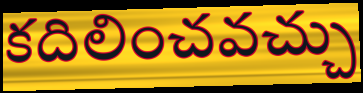
కదిలించవచ్చు